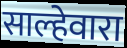
साल्हेवारा